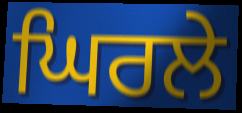
ਘਿਰਲੇ